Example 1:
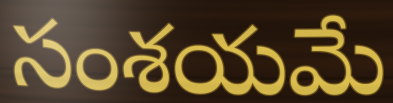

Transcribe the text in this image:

సంశయమే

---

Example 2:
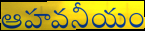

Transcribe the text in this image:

ఆహవనీయం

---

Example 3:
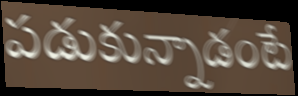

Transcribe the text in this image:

పడుకున్నాడంటే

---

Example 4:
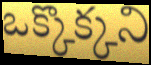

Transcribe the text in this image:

ఒక్కొక్కని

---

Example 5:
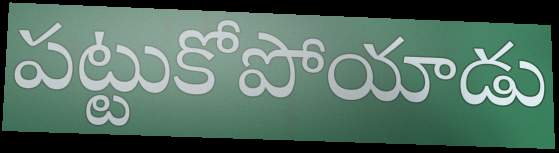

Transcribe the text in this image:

పట్టుకోపోయాడు